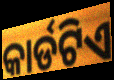
କାର୍ଡଟିଏ